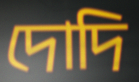
দোদি